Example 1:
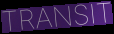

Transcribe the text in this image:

TRANSIT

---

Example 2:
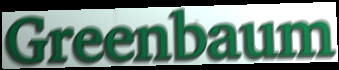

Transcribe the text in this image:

Greenbaum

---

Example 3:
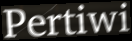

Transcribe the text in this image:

Pertiwi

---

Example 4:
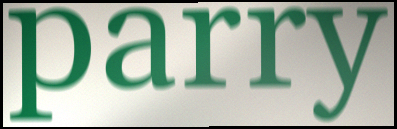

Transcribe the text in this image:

parry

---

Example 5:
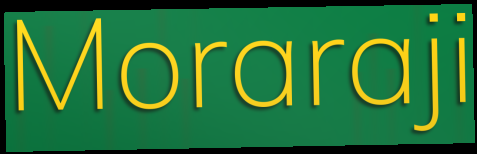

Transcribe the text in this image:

Moraraji